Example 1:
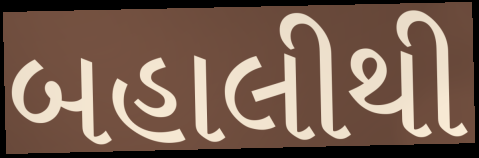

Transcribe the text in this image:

બહાલીથી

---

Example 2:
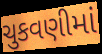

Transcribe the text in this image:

ચુકવણીમાં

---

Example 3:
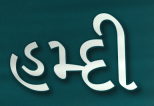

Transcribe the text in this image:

હમ્દી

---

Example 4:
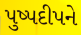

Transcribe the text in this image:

પુષ્પદીપને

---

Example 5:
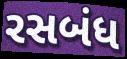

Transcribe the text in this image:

રસબંધ